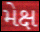
મેક્ષ